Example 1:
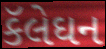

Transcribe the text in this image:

કૅલેઘન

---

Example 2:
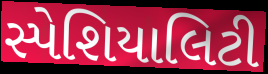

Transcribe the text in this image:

સ્પેશિયાલિટી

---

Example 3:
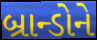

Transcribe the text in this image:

બ્રાન્ડોને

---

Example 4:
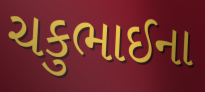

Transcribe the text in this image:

ચકુભાઈના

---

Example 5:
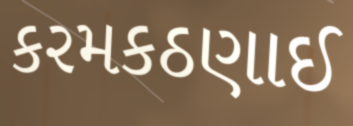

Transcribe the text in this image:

કરમકઠણાઈ